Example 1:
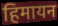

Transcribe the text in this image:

हिमायन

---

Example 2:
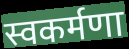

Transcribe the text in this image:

स्वकर्मणा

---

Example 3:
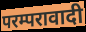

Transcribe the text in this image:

परम्परावादी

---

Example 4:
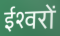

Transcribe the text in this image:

ईश्वरों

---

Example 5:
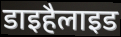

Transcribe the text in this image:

डाइहैलाइड